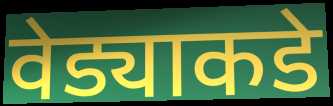
वेड्याकडे